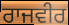
ਰਾਜਵੀਰ